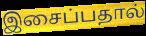
இசைப்பதால்